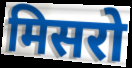
मिसरो